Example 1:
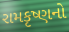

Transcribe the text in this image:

રામકૃષ્ણનો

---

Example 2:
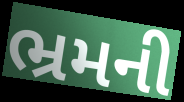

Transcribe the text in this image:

ભ્રમની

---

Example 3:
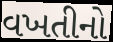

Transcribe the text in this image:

વખતીનો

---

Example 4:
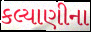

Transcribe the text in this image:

કલ્યાણીના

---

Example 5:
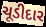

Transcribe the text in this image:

ચૂડીદાર